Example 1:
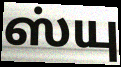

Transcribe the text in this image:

ஸ்யு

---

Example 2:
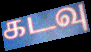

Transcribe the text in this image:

கடவு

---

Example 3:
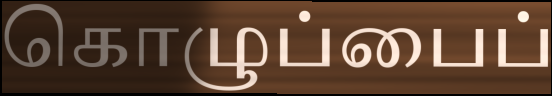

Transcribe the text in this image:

கொழுப்பைப்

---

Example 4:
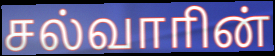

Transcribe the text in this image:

சல்வாரின்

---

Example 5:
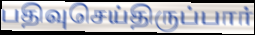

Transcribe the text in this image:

பதிவுசெய்திருப்பார்